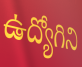
ఉద్యోగిని